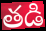
తడి